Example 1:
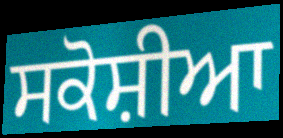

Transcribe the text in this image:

ਸਕੋਸ਼ੀਆ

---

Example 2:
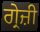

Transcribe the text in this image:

ਗ੍ਰੇਜ਼ੀ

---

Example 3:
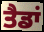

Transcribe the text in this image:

ਤੈਡਾਂ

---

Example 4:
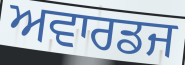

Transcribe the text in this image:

ਅਵਾਰਡਜ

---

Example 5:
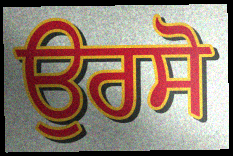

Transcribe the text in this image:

ਉਰਸੋ